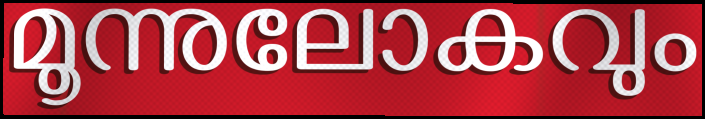
മൂന്നുലോകവും